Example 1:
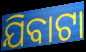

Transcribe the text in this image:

ଯିବାଟା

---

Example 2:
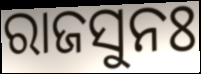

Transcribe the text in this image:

ରାଜସୁନଃ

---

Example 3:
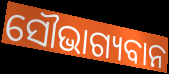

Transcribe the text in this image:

ସୌଭାଗ୍ୟବାନ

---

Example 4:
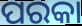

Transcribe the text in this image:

ପରକା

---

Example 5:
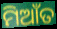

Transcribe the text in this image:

ମିଆଁତ